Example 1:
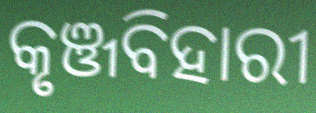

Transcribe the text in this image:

କୃଞ୍ଜବିହାରୀ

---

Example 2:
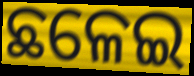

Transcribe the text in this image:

ଛଳେଇ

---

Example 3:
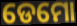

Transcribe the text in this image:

ଡେମୋ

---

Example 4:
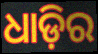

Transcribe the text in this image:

ଧାଡ଼ିର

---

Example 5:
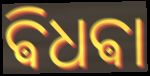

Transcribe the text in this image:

ଵିଧଵା